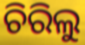
ଚିରିଲୁ